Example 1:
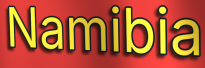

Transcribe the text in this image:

Namibia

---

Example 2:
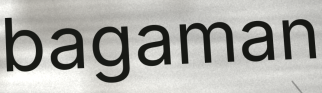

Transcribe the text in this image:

bagaman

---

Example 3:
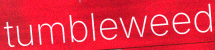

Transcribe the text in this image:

tumbleweed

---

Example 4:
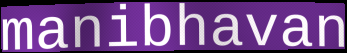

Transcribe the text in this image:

manibhavan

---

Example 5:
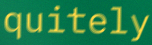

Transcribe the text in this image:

quitely